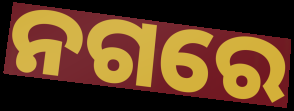
ନଗରେ